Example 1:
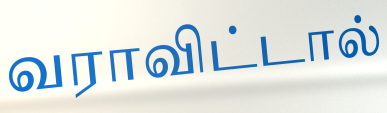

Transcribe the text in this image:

வராவிட்டால்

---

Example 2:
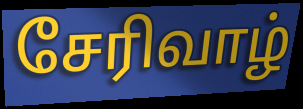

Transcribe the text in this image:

சேரிவாழ்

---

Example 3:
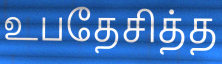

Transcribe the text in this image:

உபதேசித்த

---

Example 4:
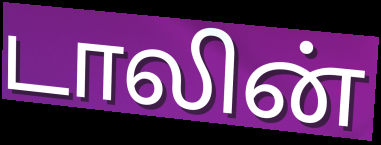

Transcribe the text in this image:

டாலின்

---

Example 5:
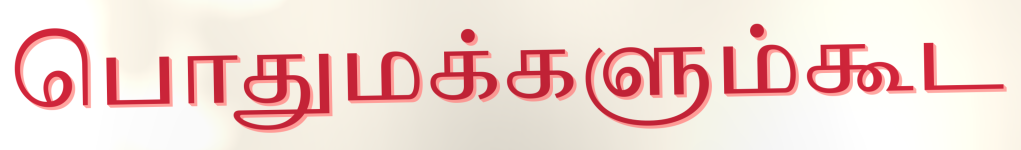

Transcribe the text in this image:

பொதுமக்களும்கூட